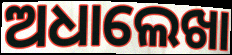
ଅଧାଲେଖା